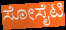
ಸೋಸೈಟಿ